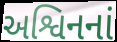
અશ્વિનનાં